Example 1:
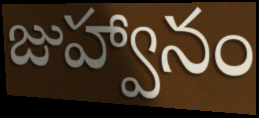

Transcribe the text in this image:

జుహ్వానం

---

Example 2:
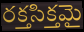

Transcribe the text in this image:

రక్తసిక్తమై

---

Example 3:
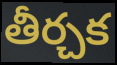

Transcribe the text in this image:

తీర్చక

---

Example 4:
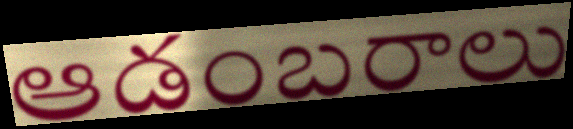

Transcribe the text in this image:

ఆడంబరాలు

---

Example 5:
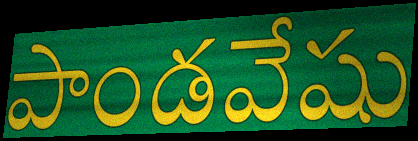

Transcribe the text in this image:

పాండవేషు